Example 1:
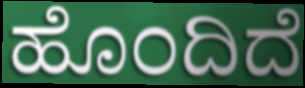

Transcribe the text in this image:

ಹೊಂದಿದೆ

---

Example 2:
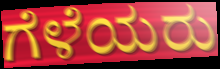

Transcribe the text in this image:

ಗೆಳೆಯರು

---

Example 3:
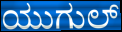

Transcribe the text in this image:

ಯುಗುಲ್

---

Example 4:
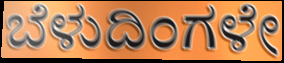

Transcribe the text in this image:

ಬೆಳುದಿಂಗಳೇ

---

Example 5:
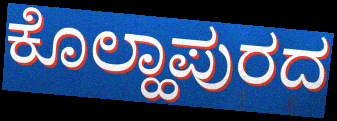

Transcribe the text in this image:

ಕೊಲ್ಹಾಪುರದ